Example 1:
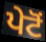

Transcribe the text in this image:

ਪੇਟੋਂ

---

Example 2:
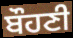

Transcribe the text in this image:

ਬੌਹਣੀ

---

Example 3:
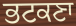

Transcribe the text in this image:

ਭਟਕਣਾ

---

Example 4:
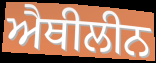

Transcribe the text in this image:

ਐਥੀਲੀਨ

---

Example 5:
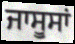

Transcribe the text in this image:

ਜਾਸੂਸਾਂ